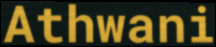
Athwani